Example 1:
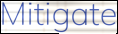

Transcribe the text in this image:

Mitigate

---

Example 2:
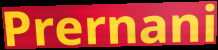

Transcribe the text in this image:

Prernani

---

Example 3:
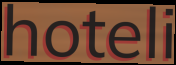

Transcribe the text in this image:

hoteli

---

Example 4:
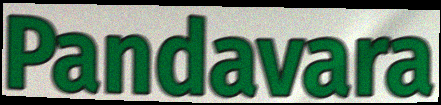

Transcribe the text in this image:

Pandavara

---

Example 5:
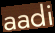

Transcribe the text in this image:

aadi